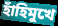
হাঁহিমুখে